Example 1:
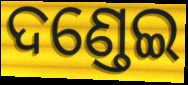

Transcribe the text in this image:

ଦଣ୍ଡେଇ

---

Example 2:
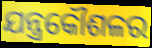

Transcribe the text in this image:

ଯନ୍ତ୍ରକୌଶଳର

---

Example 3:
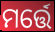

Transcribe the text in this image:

ମର୍ତ୍ତେ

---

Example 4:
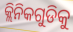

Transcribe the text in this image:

କ୍ଲିନିକଗୁଡିକୁ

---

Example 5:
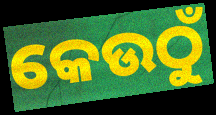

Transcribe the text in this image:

କେଉଠୁଁ